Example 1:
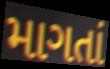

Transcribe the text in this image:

માગતાં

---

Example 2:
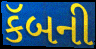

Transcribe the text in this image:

કૅબની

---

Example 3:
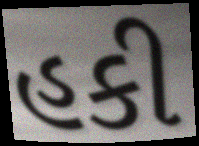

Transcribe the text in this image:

હકી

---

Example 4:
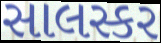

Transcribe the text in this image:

સાલસ્કર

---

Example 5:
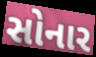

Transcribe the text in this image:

સોનાર